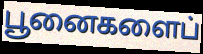
பூனைகளைப்